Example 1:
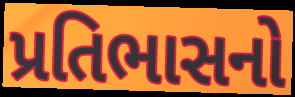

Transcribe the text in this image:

પ્રતિભાસનો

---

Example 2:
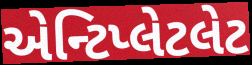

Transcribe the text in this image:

એન્ટિપ્લેટલેટ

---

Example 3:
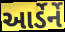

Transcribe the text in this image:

આર્ડેર્ને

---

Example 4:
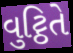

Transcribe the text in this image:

વુટ્ઠિતે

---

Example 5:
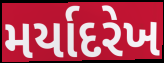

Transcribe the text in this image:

મર્યાદરેખ